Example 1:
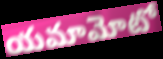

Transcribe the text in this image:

యమామోటో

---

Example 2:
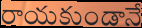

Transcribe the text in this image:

రాయకుండానే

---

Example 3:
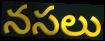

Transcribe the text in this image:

నసలు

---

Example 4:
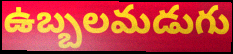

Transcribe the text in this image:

ఉబ్బలమడుగు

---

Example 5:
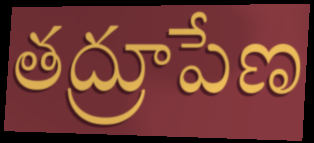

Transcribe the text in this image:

తద్రూపేణ